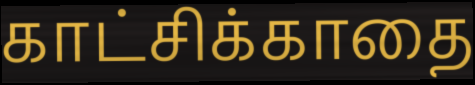
காட்சிக்காதை